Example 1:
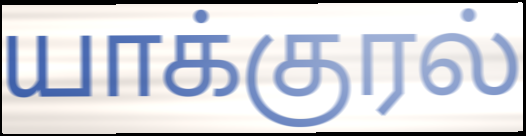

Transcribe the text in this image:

யாக்குரல்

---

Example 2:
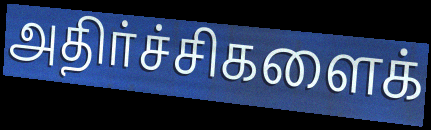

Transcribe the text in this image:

அதிர்ச்சிகளைக்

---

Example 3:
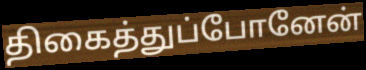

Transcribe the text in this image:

திகைத்துப்போனேன்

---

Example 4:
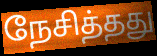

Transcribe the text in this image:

நேசித்தது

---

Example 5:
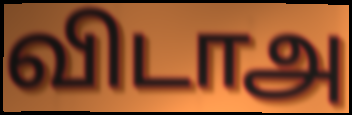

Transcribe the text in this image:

விடாஅ